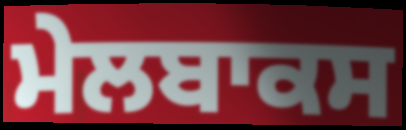
ਮੇਲਬਾਕਸ